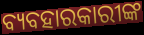
ବ୍ୟବହାରକାରୀଙ୍କ